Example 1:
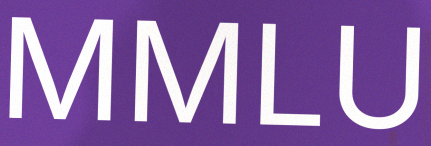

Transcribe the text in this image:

MMLU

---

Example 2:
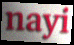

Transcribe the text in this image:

nayi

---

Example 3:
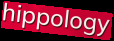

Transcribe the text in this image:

hippology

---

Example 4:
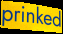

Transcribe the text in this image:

prinked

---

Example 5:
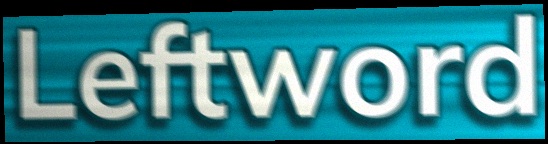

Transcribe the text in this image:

Leftword